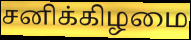
சனிக்கிழமை